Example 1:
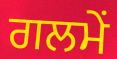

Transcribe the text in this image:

ਗਲਮੇਂ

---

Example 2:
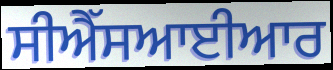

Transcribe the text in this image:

ਸੀਐੱਸਆਈਆਰ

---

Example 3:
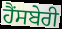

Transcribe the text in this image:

ਹੈਂਸਬੇਰੀ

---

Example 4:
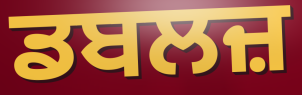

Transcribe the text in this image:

ਡਬਲਜ਼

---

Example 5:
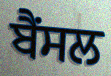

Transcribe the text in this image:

ਬੈਂਸਲ